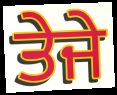
ਤੇਜੇ